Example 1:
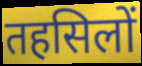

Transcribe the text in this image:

तहसिलों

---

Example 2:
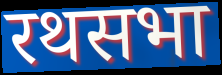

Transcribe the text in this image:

रथसभा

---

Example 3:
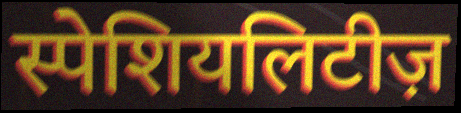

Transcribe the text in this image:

स्पेशियलिटीज़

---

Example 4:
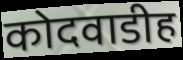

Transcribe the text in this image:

कोदवाडीह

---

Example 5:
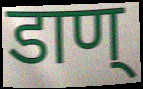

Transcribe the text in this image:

डाण्